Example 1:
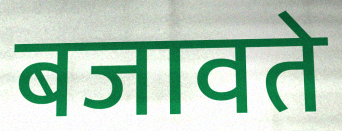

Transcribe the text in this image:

बजावते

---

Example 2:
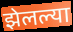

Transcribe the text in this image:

झेलल्या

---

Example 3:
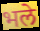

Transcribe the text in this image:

भले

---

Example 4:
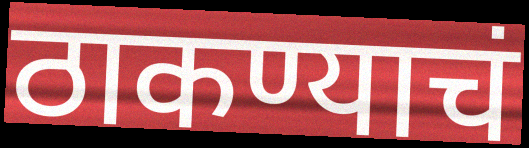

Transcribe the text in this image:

ठाकण्याचं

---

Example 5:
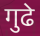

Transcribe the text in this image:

गुढे